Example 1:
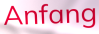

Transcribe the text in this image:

Anfang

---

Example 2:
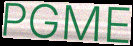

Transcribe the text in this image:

PGME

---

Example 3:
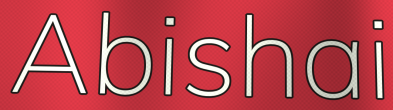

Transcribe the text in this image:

Abishai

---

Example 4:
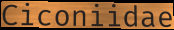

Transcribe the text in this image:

Ciconiidae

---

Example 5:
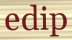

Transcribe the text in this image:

edip